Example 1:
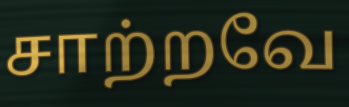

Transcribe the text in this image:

சாற்றவே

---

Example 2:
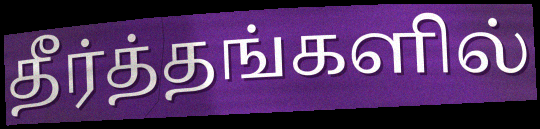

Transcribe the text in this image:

தீர்த்தங்களில்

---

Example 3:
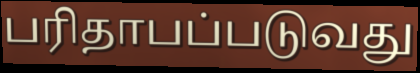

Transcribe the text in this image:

பரிதாபப்படுவது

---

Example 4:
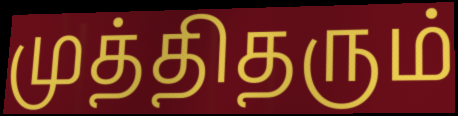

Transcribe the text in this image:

முத்திதரும்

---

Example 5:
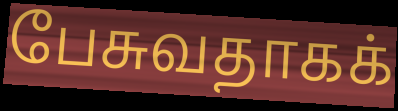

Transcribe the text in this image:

பேசுவதாகக்